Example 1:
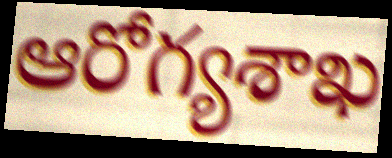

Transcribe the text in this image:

ఆరోగ్యశాఖ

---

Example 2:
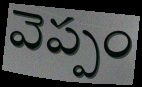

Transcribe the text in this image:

వెప్పం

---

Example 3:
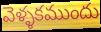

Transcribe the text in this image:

వెళ్ళకముందు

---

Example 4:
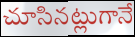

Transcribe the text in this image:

చూసినట్లుగానే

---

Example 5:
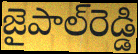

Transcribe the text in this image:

జైపాల్‌రెడ్డి